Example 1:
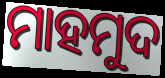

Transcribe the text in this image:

ମାହମୁଦ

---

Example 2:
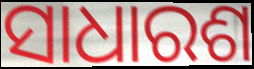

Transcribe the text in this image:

ସାଧାରଶ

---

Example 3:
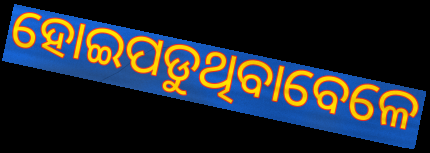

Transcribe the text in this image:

ହୋଇପଡୁଥିବାବେଳେ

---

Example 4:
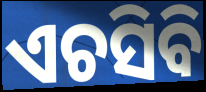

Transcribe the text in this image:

ଏଚସିବି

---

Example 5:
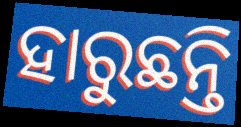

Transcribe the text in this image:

ହାରୁଛନ୍ତି